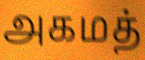
அகமத்